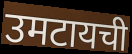
उमटायची